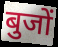
बुजों